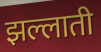
झल्लाती